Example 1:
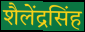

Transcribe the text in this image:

शैलेंद्रसिंह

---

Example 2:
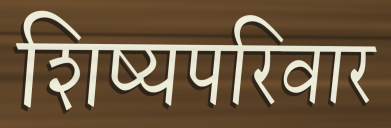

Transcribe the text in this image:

शिष्यपरिवार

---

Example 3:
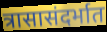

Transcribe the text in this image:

त्रासासंदर्भात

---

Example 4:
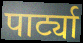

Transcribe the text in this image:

पार्ट्या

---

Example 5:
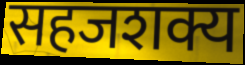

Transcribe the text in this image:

सहजशक्य